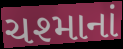
ચશ્માનાં